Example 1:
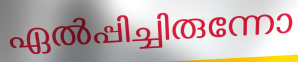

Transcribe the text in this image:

ഏൽപ്പിച്ചിരുന്നോ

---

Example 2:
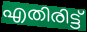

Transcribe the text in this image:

എതിരിട്ട്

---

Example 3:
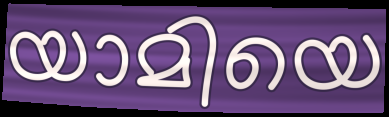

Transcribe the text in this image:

യാമിയെ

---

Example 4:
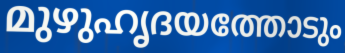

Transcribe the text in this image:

മുഴുഹൃദയത്തോടും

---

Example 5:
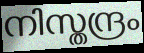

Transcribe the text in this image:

നിസ്തന്ദ്രം